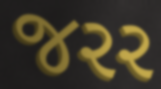
જરર